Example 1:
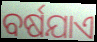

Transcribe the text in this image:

ବର୍ଷଯାଏ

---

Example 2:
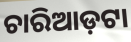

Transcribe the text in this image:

ଚାରିଆଡ଼ଟା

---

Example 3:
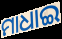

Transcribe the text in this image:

ମାଧାଇ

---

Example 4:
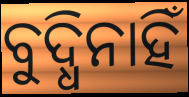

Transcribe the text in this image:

ବୁଦ୍ଧିନାହିଁ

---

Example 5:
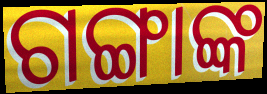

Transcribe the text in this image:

ଗଙ୍ଗାଙ୍କ